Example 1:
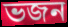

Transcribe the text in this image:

ভজন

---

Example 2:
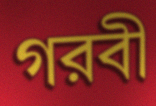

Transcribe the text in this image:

গরবী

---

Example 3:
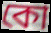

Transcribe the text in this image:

কো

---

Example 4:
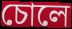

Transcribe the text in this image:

চোলে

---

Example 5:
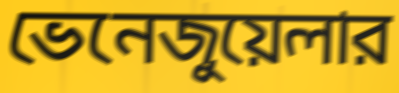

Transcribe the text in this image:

ভেনেজুয়েলার